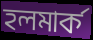
হলমার্ক